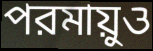
পরমায়ুও